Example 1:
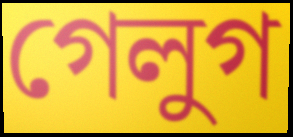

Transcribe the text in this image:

গেলুগ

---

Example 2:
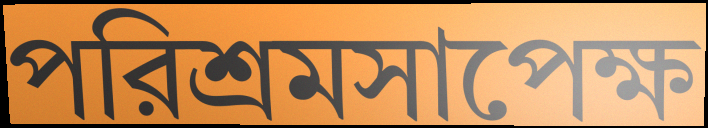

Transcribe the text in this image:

পরিশ্রমসাপেক্ষ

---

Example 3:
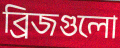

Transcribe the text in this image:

ব্রিজগুলো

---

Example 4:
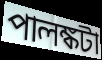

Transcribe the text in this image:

পালঙ্কটা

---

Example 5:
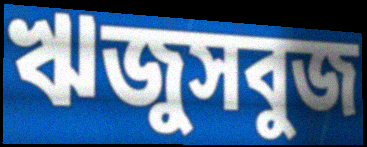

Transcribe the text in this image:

ঋজুসবুজ